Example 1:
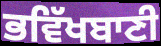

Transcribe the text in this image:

ਭਵਿੱਖਬਾਣੀ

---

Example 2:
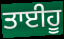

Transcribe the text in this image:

ਤਾਈਹੂ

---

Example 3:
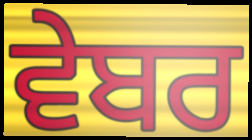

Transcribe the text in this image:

ਵੇਬਰ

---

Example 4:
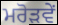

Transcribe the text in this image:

ਮਰੋੜਵੇਂ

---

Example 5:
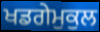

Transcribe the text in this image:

ਖਡਗੇਮੁਕੁਲ